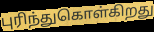
புரிந்துகொள்கிறது